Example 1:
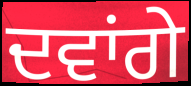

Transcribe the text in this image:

ਦਵਾਂਗੇ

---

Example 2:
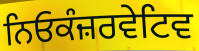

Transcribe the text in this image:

ਨਿਓਕੰਜ਼ਰਵੇਟਿਵ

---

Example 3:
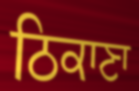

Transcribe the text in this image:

ਠਿਕਾਣਾ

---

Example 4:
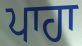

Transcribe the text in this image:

ਪਾਹਾ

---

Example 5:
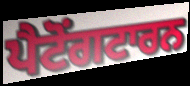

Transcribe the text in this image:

ਪੈਟੋਂਗਟਾਰਨ